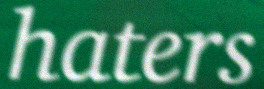
haters